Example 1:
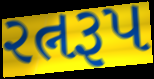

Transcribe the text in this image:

રત્નરૂપ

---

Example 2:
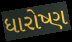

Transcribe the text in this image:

ધારોષ્ણ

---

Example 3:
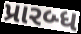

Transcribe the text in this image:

પ્રારબ્ધ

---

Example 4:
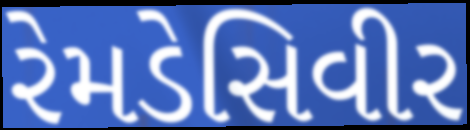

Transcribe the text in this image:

રેમડેસિવીર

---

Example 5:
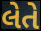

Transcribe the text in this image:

લેતે